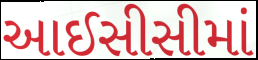
આઈસીસીમાં